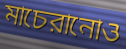
মাচেরানোও